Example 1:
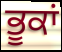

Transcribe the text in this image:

ਭੂਕਾਂ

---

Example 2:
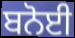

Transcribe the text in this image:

ਬਨੋਈ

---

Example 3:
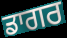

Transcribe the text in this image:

ਡਾਗਰ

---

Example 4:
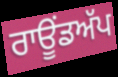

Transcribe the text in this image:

ਰਾਊਂਡਅੱਪ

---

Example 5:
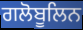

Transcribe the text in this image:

ਗਲੋਬੂਲਿਨ